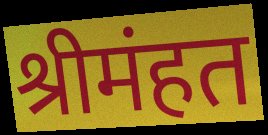
श्रीमंहत